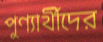
পুণ্যার্থীদের